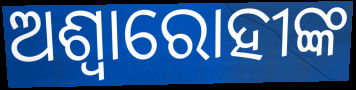
ଅଶ୍ୱାରୋହୀଙ୍କ